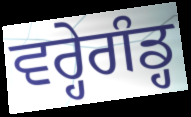
ਵਰ੍ਹੇਗੰਡ੍ਹ